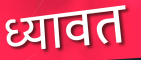
ध्यावत